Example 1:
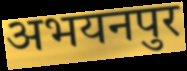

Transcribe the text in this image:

अभयनपुर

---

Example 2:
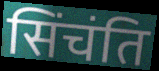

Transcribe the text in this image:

सिंचंति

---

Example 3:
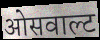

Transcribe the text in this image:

ओसवाल्ट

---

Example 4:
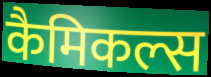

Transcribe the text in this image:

कैमिकल्स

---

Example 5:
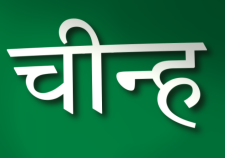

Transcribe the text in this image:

चीन्ह